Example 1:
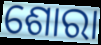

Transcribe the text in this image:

ଶୋରା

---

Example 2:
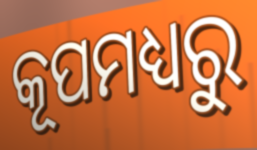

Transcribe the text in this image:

କୂପମଧ୍ୟରୁ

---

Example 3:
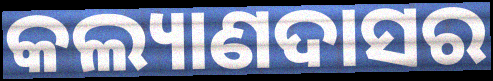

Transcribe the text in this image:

କଲ୍ୟାଣଦାସର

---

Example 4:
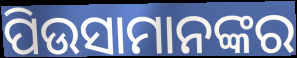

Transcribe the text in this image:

ପିଉସାମାନଙ୍କର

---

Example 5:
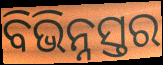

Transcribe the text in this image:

ବିଭିନ୍ନସ୍ତର